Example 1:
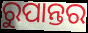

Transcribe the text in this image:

ରୁପାନ୍ତର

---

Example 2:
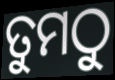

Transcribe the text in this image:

ତୁମଠୁ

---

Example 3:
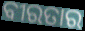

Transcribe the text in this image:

ବୀରତାର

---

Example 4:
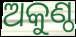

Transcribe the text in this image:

ଅକୁଣ୍ଠ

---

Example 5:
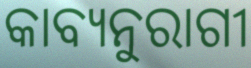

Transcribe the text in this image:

କାବ୍ୟନୁରାଗୀ